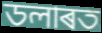
ডলাৰত